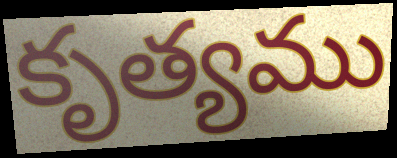
కృత్యము